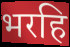
भरहि